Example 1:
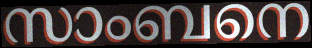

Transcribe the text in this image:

സാംബനെ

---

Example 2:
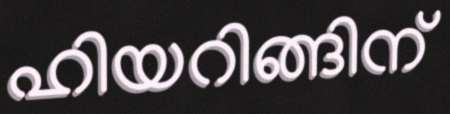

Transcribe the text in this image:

ഹിയറിങ്ങിന്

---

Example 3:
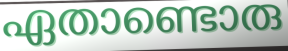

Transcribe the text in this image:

ഏതാണ്ടൊരു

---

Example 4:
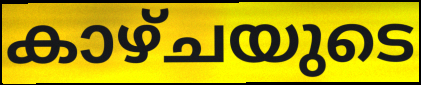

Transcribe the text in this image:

കാഴ്ചയുടെ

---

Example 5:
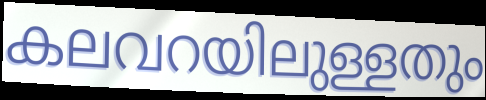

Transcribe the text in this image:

കലവറയിലുള്ളതും